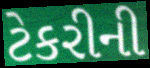
ટેકરીની